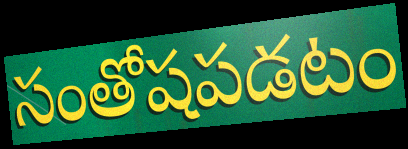
సంతోషపడటం